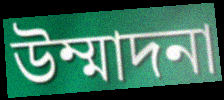
উম্মাদনা